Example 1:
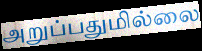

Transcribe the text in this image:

அறுப்பதுமில்லை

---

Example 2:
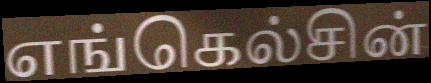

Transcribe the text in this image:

எங்கெல்சின்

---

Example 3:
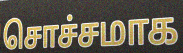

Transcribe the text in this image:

சொச்சமாக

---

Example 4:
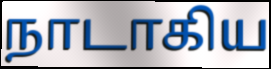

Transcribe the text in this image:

நாடாகிய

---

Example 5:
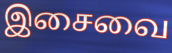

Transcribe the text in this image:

இசைவை